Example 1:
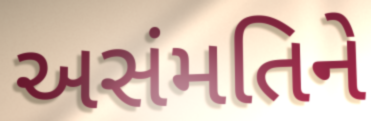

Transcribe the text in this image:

અસંમતિને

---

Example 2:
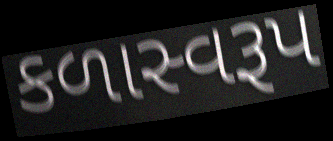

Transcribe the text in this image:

કળાસ્વરૂપ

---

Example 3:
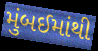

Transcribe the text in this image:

મુંબઈમાંથી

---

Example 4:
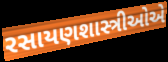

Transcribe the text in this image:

રસાયણશાસ્ત્રીઓએ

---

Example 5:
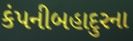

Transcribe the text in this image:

કંપનીબહાદુરના